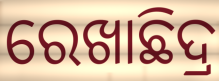
ରେଖାଛିଦ୍ର